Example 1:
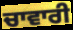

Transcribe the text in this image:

ਚਾਵਾਰੀ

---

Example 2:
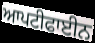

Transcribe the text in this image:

ਆਪਟੀਫਾਈਨ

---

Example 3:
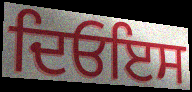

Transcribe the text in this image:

ਦਿਓਇਸ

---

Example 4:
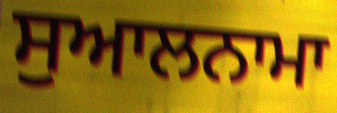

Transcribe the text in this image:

ਸੁਆਲਨਾਮਾ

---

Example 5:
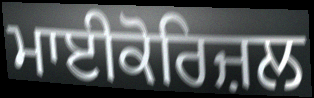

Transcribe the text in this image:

ਮਾਈਕੋਰਿਜ਼ਲ